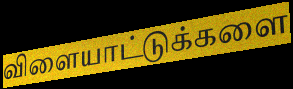
விளையாட்டுக்களை